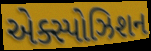
એક્સ્પોઝિશન